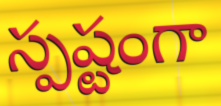
స్పష్టంగా